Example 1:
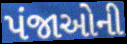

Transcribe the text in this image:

પંજાઓની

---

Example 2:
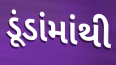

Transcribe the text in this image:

ડૂંડાંમાંથી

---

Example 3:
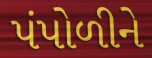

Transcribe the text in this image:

પંપોળીને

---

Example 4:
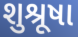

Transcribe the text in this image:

શુશ્રૂષા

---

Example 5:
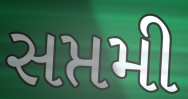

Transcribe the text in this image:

સપ્તમી